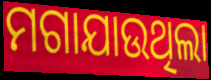
ମଗାଯାଉଥିଲା